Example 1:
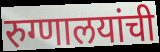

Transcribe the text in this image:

रुग्णालयांची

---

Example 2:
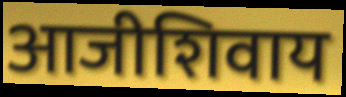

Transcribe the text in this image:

आजीशिवाय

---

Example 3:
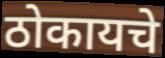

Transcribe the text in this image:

ठोकायचे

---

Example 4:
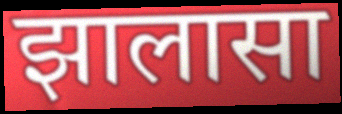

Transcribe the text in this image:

झालासा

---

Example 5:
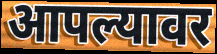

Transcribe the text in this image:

आपल्यावर